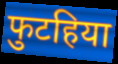
फुटहिया